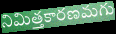
నిమిత్తకారణమగు